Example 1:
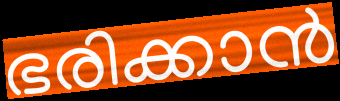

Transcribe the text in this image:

ഭരിക്കാൻ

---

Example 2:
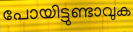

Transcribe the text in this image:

പോയിട്ടുണ്ടാവുക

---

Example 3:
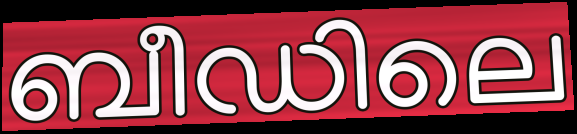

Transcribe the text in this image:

ബീഡിലെ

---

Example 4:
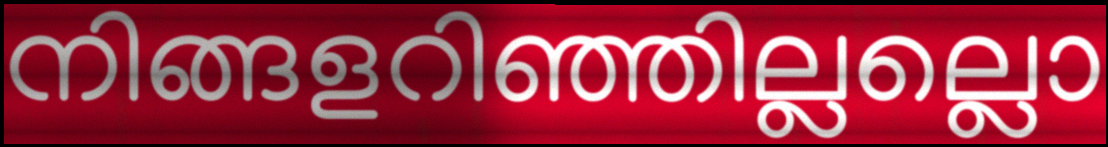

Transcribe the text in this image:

നിങ്ങളറിഞ്ഞില്ലല്ലൊ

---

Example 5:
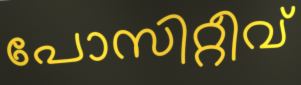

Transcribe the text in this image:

പോസിറ്റീവ്